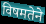
विषमतेने